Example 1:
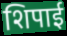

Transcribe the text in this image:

शिपाई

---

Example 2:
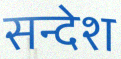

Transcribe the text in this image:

सन्देश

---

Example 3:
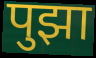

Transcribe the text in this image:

पुझा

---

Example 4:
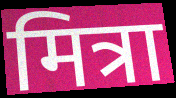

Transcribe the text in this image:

मित्रा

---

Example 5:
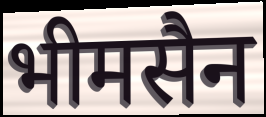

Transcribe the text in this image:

भीमसैन